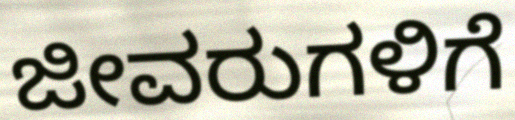
ಜೀವರುಗಳಿಗೆ